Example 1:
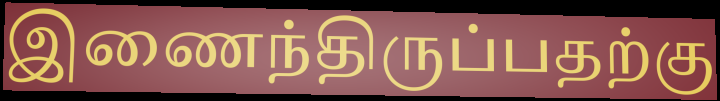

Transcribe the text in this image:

இணைந்திருப்பதற்கு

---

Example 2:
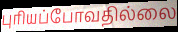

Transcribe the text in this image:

புரியப்போவதில்லை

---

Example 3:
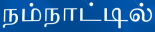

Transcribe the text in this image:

நம்நாட்டில்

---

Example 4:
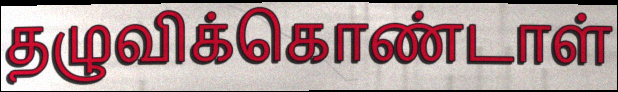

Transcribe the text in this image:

தழுவிக்கொண்டாள்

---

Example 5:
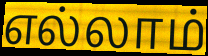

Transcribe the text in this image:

எல்லாம்